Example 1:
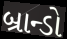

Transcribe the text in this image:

બ્રાન્ડો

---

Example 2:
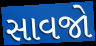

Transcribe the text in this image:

સાવજો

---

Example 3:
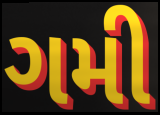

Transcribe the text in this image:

ગમી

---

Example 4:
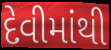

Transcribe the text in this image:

દેવીમાંથી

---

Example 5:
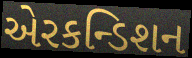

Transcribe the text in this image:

એરકન્ડિશન